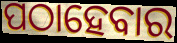
ପଠାହେବାର